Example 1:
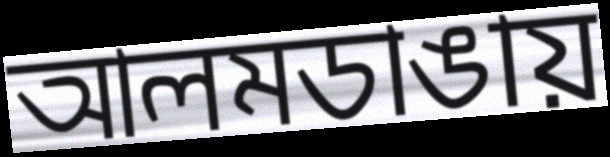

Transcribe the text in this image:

আলমডাঙায়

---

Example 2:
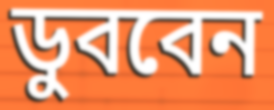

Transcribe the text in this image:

ডুববেন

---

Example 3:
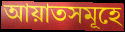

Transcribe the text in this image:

আয়াতসমূহে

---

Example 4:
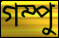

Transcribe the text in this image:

গম্পু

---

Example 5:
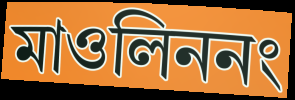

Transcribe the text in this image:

মাওলিননং